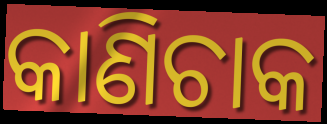
କାଣିଚାକ